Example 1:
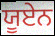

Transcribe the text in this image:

ਯੂਏਨ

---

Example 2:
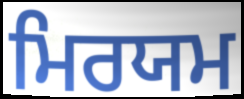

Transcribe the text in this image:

ਮਿਰਯਮ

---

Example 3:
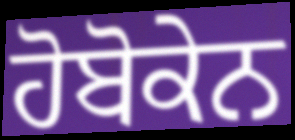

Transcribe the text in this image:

ਹੋਬੋਕੇਨ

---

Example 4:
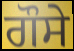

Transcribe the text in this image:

ਗੌਸੇ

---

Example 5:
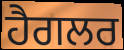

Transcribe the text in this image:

ਹੈਗਲਰ